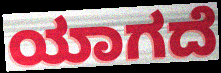
ಯಾಗದೆ